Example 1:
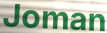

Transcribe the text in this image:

Joman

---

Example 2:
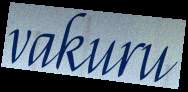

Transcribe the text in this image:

vakuru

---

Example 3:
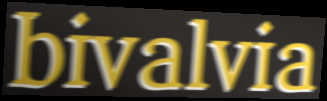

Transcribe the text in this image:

bivalvia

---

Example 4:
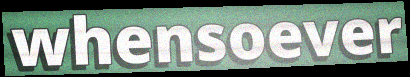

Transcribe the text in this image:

whensoever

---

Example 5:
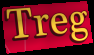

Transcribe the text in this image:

Treg